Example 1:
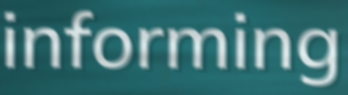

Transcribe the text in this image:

informing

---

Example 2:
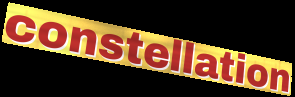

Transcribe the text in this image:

constellation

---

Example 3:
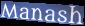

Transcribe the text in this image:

Manash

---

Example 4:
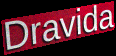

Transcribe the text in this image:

Dravida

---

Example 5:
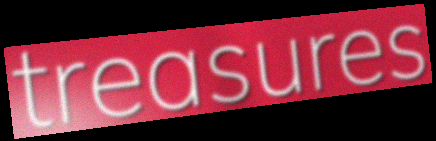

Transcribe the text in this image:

treasures